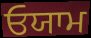
ਓਯਾਮ